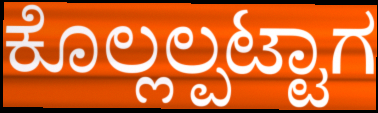
ಕೊಲ್ಲಲ್ಪಟ್ಟಾಗ